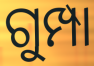
ଗୁମ୍ପା